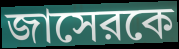
জাসেরকে